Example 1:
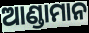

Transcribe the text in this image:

ଆଣ୍ଡାମାନ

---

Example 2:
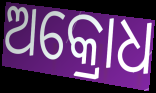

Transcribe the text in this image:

ଅକ୍ରୋଧ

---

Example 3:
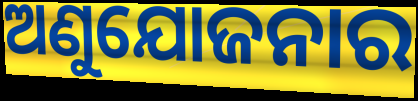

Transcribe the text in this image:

ଅଣୁଯୋଜନାର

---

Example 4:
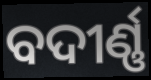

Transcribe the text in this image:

ବଦୀର୍ଣ୍ଣ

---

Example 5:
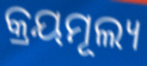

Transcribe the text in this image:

କ୍ରୟମୂଲ୍ୟ